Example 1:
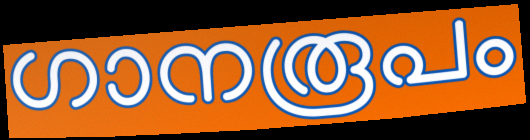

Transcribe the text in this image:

ഗാനരൂപം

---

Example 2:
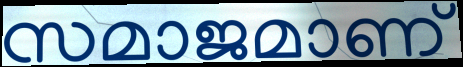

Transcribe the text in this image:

സമാജമാണ്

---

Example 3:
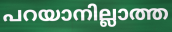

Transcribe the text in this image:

പറയാനില്ലാത്ത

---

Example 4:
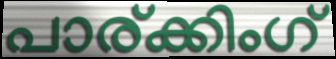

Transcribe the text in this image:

പാര്ക്കിംഗ്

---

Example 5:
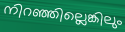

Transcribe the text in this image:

നിറഞ്ഞില്ലെങ്കിലും